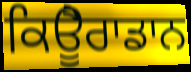
ਕਿਊੈਰਾਡਾਨ